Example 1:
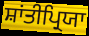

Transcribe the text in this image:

ਸ਼ਾਂਤੀਪ੍ਰਿਯਾ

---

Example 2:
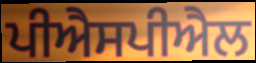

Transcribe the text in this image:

ਪੀਐਸਪੀਐਲ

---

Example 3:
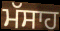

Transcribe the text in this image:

ਮੱਸਾਹ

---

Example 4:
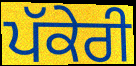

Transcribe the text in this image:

ਪੱਕੇਰੀ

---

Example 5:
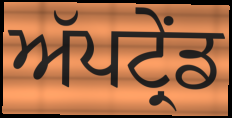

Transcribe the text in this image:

ਅੱਪਟ੍ਰੇਂਡ